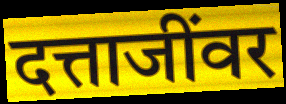
दत्ताजींवर